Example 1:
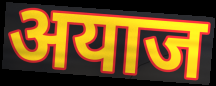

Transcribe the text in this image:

अयाज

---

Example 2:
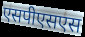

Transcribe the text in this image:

एसपीएसएस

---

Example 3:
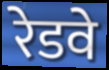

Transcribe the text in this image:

रेडवे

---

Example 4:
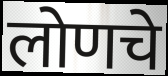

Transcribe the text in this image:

लोणचे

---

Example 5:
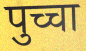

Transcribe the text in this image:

पुच्चा